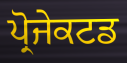
ਪ੍ਰੋਜੇਕਟਡ